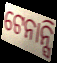
ଟେନାନ୍ସି